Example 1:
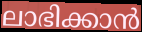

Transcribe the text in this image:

ലാഭിക്കാൻ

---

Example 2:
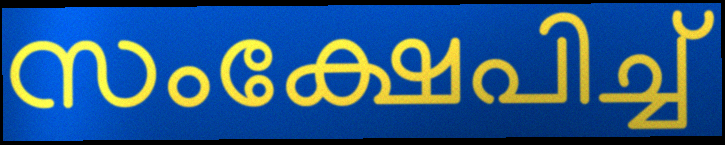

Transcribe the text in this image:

സംക്ഷേപിച്ച്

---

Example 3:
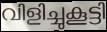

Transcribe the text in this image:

വിളിച്ചുകൂട്ടി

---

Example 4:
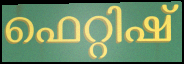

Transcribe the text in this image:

ഫെറ്റിഷ്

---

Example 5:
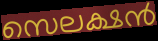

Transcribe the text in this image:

സെലക്ഷൻ